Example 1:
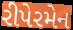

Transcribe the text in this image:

રીપેરમેન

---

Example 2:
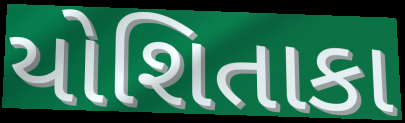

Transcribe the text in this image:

યોશિતાકા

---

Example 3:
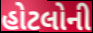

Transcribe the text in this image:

હોટલોની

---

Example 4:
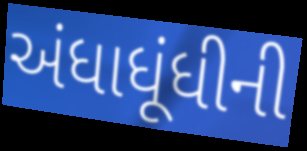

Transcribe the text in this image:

અંધાધૂંધીની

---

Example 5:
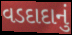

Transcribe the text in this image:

વડદાદાનું